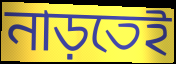
নাড়তেই